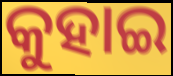
କୁହାଇ